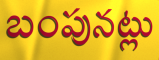
బంపునట్లు